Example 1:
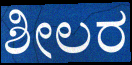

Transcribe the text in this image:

ಶೀಲರ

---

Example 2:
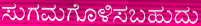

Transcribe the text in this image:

ಸುಗಮಗೊಳಿಸಬಹುದು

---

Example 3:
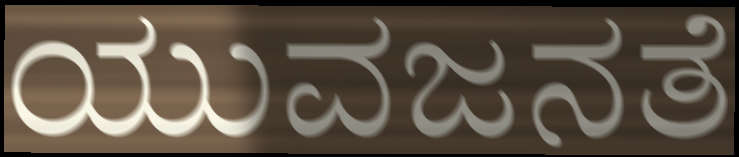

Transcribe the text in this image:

ಯುವಜನತೆ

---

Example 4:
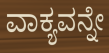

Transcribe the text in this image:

ವಾಕ್ಯವನ್ನೇ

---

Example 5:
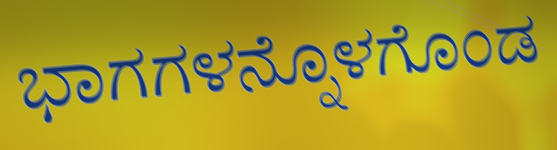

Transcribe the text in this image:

ಭಾಗಗಳನ್ನೊಳಗೊಂಡ